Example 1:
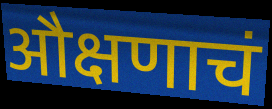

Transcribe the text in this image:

औक्षणाचं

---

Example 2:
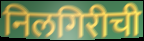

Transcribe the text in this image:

निलगिरीची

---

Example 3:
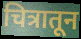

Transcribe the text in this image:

चित्रातून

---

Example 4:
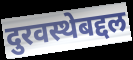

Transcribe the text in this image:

दुरवस्थेबद्दल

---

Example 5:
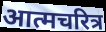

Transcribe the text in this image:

आत्मचरित्र